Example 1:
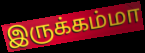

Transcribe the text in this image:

இருக்கம்மா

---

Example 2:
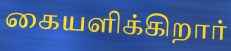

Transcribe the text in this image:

கையளிக்கிறார்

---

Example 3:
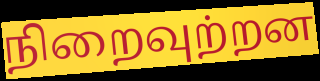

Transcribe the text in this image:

நிறைவுற்றன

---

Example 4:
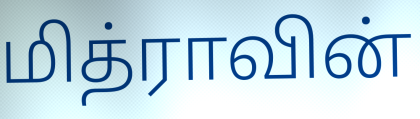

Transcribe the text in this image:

மித்ராவின்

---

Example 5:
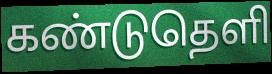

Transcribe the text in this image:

கண்டுதெளி